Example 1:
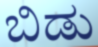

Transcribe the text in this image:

ಬಿಡು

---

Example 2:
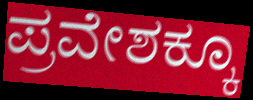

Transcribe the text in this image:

ಪ್ರವೇಶಕ್ಕೂ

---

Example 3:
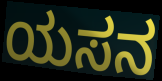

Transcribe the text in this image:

ಯಸನ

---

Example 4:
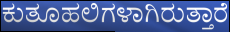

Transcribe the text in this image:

ಕುತೂಹಲಿಗಳಾಗಿರುತ್ತಾರೆ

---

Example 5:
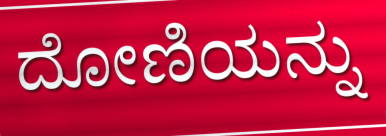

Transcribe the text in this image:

ದೋಣಿಯನ್ನು